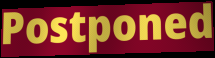
Postponed